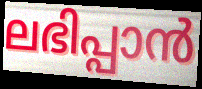
ലഭിപ്പാൻ